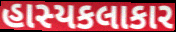
હાસ્યકલાકાર